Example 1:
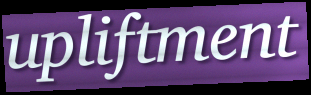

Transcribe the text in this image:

upliftment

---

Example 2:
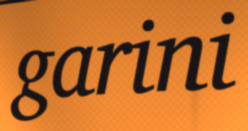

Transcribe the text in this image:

garini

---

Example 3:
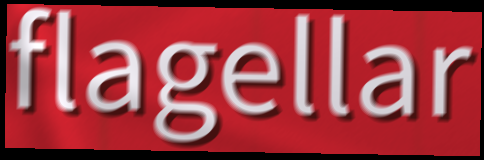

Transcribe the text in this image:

flagellar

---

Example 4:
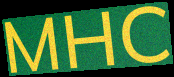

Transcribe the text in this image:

MHC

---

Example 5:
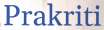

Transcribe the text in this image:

Prakriti